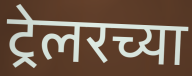
ट्रेलरच्या